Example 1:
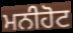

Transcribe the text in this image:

ਮਨੀਹੋਟ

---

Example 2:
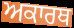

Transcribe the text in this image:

ਅਕਾਰਥ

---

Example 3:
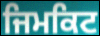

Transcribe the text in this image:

ਜਿਮਕਿਟ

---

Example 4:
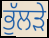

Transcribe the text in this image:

ਭੁੱਲੜੇ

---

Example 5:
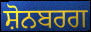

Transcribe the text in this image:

ਸ਼ੋਨਬਰਗ